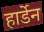
हार्डेन